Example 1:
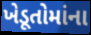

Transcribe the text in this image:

ખેડૂતોમાંના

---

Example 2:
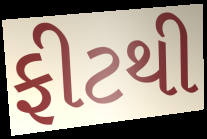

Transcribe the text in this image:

ફીટથી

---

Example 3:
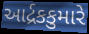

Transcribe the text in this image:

આર્દ્રકકુમારે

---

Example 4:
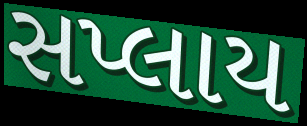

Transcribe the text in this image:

સપ્લાય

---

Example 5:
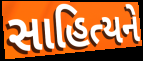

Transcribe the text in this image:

સાહિત્યને